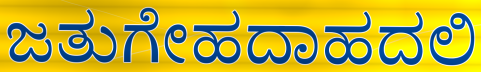
ಜತುಗೇಹದಾಹದಲಿ